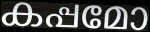
കപ്പമോ